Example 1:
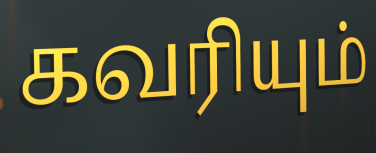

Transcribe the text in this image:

கவரியும்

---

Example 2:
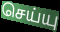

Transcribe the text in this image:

செய்யு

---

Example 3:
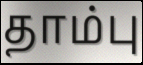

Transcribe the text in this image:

தாம்பு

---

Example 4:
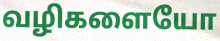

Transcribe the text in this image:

வழிகளையோ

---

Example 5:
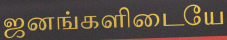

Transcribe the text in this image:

ஜனங்களிடையே